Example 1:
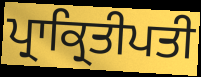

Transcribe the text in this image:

ਪ੍ਰਾਕ੍ਰਿਤੀਪਤੀ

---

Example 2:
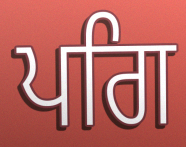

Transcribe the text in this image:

ਪਗਿ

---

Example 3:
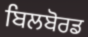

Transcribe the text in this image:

ਬਿਲਬੋਰਡ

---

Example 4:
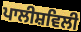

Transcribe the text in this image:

ਪਾਲੀਸ਼ਵਿਲੀ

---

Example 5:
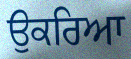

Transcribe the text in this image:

ਉਕਰਿਆ